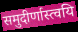
समुदीर्णास्त्वयि